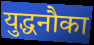
युद्धनौका